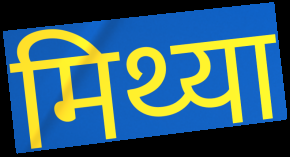
मिथ्‍या